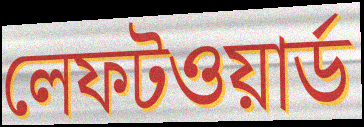
লেফটওয়ার্ড